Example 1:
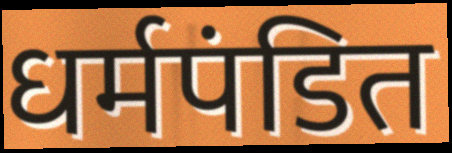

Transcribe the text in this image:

धर्मपंडित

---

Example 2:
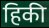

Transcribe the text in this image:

हिकी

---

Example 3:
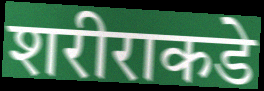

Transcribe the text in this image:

शरीराकडे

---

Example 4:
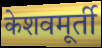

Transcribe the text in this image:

केशवमूर्ती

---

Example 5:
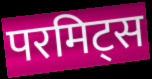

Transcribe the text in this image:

परमिट्स